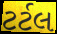
ટર્ટલ